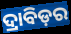
ଦ୍ରାବିଡ଼ର